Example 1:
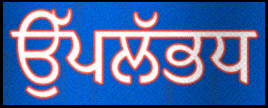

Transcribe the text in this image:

ਉੱਪਲੱਭਧ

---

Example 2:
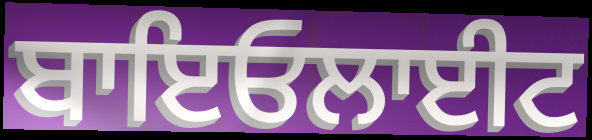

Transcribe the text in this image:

ਬਾਇਓਲਾਈਟ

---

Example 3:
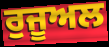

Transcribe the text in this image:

ਰੁਜੂਅਲ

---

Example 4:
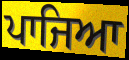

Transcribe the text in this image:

ਪਾਜਿਆ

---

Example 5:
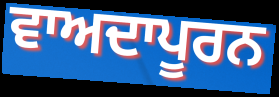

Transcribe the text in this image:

ਵਾਅਦਾਪੂਰਨ